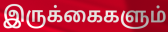
இருக்கைகளும்